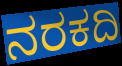
ನರಕದಿ